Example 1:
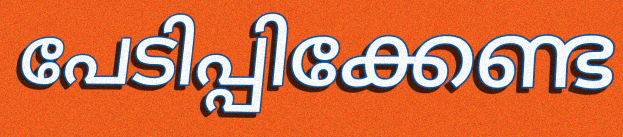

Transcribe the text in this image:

പേടിപ്പിക്കേണ്ട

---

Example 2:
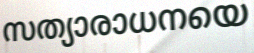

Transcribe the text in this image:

സത്യാരാധനയെ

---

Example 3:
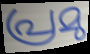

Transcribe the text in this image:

പ്രമു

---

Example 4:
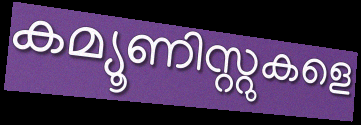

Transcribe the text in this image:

കമ്യൂണിസ്റ്റുകളെ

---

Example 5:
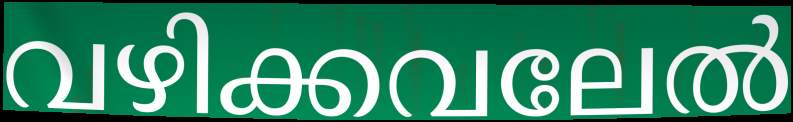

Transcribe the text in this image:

വഴിക്കവലേൽ